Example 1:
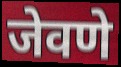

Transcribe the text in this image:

जेवणे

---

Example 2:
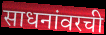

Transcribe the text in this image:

साधनांवरची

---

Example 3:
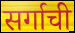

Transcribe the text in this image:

सर्गाची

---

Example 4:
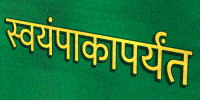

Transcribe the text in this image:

स्वयंपाकापर्यंत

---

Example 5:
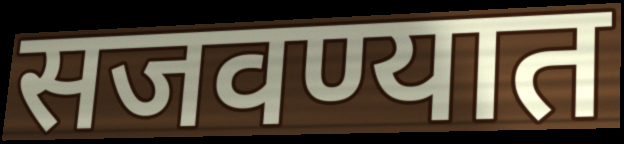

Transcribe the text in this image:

सजवण्यात